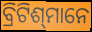
ବ୍ରିଟିଶ୍‌ମାନେ